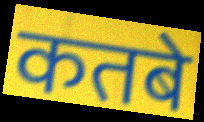
कतबे